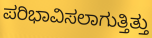
ಪರಿಭಾವಿಸಲಾಗುತ್ತಿತ್ತು